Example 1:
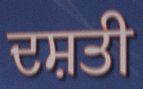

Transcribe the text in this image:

ਦਸ਼ਤੀ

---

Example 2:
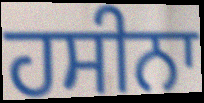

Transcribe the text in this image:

ਹਸੀਨਾ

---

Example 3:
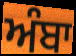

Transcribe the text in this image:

ਅੰਬਾ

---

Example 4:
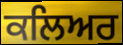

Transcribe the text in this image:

ਕਲਿਅਰ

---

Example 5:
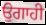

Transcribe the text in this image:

ਉਗਾਹੀ